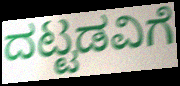
ದಟ್ಟಡವಿಗೆ